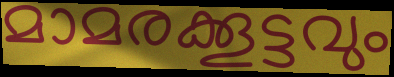
മാമരക്കൂട്ടവും